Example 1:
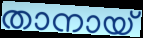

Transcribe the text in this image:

താനായ്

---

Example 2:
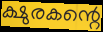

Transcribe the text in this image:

ക്ഷുരകന്റെ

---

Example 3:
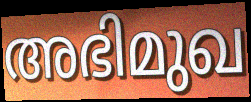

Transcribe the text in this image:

അഭിമുഖ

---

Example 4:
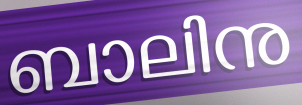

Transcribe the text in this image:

ബാലിനു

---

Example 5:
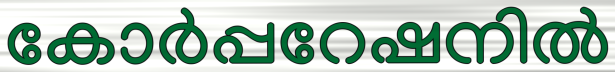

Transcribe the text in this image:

കോർപ്പറേഷനിൽ